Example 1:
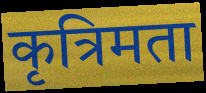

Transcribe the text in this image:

कृत्रिमता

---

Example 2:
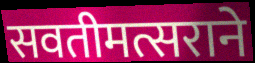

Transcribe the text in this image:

सवतीमत्सराने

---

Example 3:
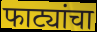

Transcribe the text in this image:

फाट्यांचा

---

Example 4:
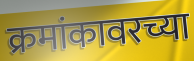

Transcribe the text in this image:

क्रमांकावरच्या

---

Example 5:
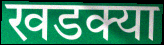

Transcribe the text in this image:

खडक्या